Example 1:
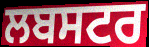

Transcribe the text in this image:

ਲਬਸਟਰ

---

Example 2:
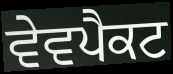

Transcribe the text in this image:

ਵੇਵਪੈਕਟ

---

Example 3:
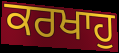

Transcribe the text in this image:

ਕਰਖਾਹੁ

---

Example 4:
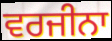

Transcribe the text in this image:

ਵਰਜੀਨਾ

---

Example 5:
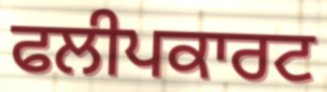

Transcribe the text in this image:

ਫਲੀਪਕਾਰਟ